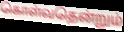
கொள்வதென்றும்